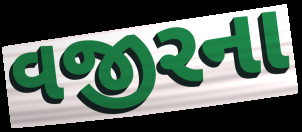
વજીરના